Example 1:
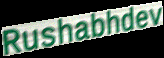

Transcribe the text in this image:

Rushabhdev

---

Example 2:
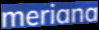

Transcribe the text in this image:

meriana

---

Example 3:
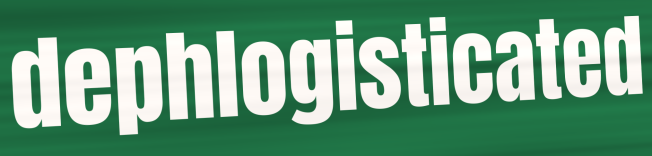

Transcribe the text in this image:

dephlogisticated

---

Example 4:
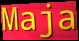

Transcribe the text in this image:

Maja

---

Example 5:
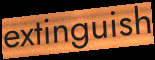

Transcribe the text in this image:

extinguish